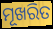
ମୂଖରିତ